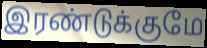
இரண்டுக்குமே